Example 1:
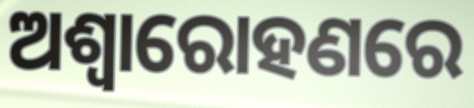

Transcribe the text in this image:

ଅଶ୍ଵାରୋହଣରେ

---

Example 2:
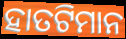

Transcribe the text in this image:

ହାତଟିମାନ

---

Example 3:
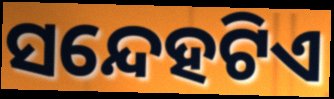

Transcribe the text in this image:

ସନ୍ଦେହଟିଏ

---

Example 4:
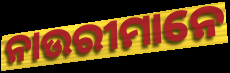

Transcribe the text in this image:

ନାଉରୀମାନେ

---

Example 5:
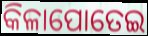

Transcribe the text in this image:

କିଳାପୋତେଇ